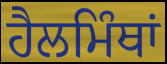
ਹੈਲਮਿੰਥਾਂ